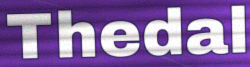
Thedal